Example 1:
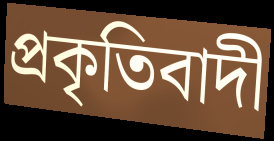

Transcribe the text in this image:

প্ৰকৃতিবাদী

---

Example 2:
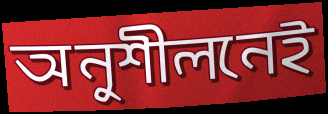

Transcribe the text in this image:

অনুশীলনেই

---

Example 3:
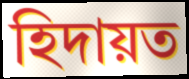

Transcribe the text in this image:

হিদায়ত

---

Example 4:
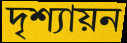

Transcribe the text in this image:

দৃশ্যায়ন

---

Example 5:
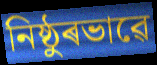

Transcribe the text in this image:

নিষ্ঠুৰভাৱে